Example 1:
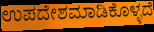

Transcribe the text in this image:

ಉಪದೇಶಮಾಡಿಕೊಳ್ಳದೆ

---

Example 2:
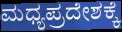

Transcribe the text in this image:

ಮಧ್ಯಪ್ರದೇಶಕ್ಕೆ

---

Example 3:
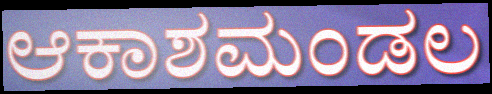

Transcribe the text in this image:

ಆಕಾಶಮಂಡಲ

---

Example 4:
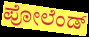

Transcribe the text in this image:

ಪೋಲೆಂಡ್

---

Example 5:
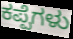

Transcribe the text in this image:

ಕಪ್ಪೆಗಳು